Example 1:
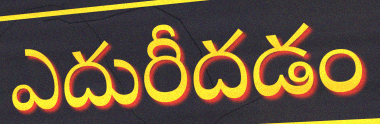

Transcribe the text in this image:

ఎదురీదడం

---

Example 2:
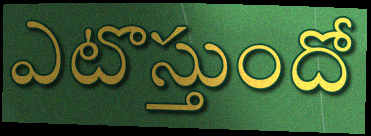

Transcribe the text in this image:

ఎటొస్తుందో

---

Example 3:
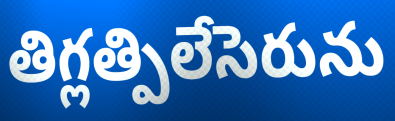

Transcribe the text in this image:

తిగ్లత్పిలేసెరును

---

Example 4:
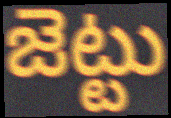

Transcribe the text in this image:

జెట్టు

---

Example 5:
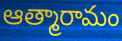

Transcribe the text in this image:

ఆత్మారామం